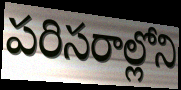
పరిసరాల్లోని